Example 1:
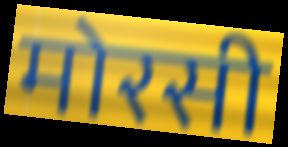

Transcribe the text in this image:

मोरसी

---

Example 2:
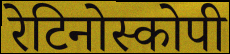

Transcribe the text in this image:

रेटिनोस्कोपी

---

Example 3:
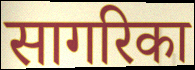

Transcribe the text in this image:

सागरिका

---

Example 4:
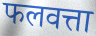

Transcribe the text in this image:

फलवत्ता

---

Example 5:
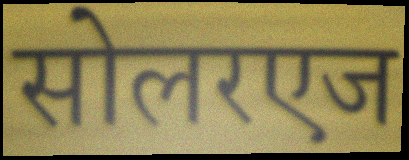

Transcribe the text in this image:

सोलरएज